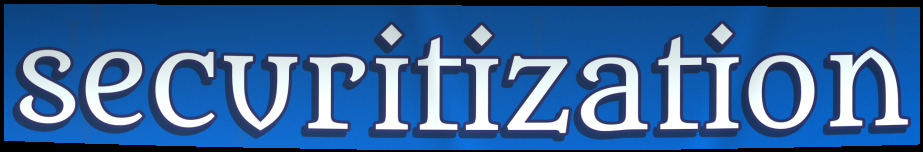
securitization